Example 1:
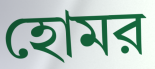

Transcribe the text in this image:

হোমর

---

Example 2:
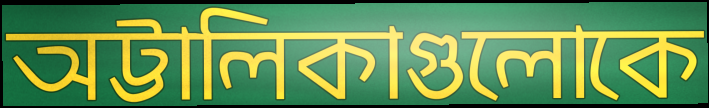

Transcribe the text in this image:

অট্টালিকাগুলোকে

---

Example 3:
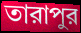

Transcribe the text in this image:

তারাপুর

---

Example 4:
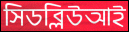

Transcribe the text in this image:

সিডব্লিউআই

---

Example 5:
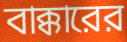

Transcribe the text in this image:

বাক্কারের